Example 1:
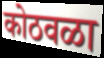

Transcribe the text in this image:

कोठवळा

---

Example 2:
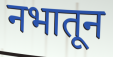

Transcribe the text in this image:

नभातून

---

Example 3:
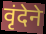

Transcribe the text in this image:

वृंदेने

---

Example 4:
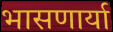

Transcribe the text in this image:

भासणार्या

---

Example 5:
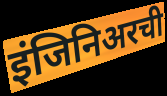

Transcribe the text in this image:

इंजिनिअरची